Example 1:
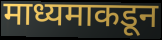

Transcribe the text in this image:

माध्यमाकडून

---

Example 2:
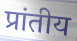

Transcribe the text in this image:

प्रांतीय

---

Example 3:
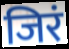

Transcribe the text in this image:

जिरं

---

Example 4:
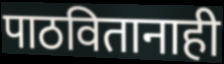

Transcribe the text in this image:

पाठवितानाही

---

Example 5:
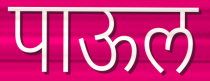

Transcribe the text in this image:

पाऊल